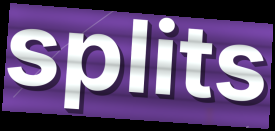
splits